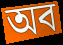
অব